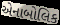
એનાબોલિક